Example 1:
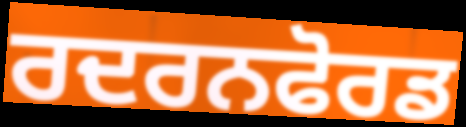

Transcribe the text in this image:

ਰਦਰਨਫੋਰਡ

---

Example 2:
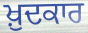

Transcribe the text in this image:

ਖ਼ੁਦਕਾਰ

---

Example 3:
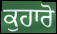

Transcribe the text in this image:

ਕੁਹਾਰੋ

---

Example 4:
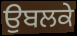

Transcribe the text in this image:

ਉਬਲਕੇ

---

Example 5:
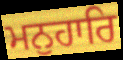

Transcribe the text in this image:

ਮਨੁਹਾਰਿ